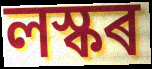
লস্কৰ